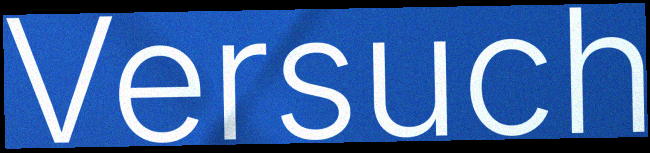
Versuch